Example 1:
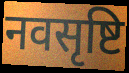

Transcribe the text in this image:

नवसृष्टि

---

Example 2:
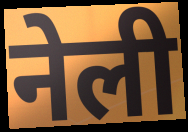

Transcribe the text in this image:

नेली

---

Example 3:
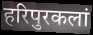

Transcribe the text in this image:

हरिपुरकलां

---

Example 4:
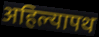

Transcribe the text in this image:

अहिल्यापथ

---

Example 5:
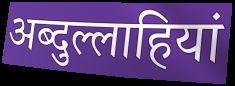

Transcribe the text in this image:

अब्दुल्लाहियां